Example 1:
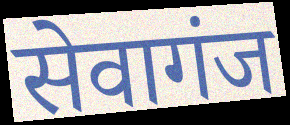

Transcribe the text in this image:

सेवागंज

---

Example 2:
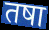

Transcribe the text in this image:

तषा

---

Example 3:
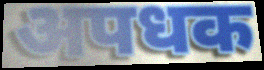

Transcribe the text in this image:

अपधक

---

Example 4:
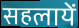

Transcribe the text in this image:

सहलायें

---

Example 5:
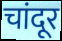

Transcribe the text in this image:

चांदूर